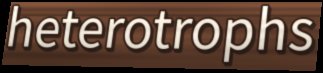
heterotrophs